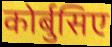
कोर्बुसिए